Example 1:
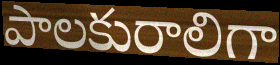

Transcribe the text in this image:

పాలకురాలిగా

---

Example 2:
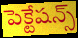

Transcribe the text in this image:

పెక్టేషన్స్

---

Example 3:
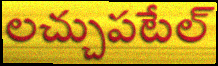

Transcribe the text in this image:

లచ్చుపటేల్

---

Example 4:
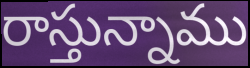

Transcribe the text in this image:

రాస్తున్నాము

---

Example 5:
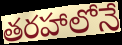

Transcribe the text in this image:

తరహాలోనే